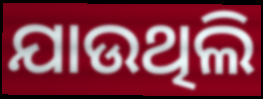
ଯାଉଥିଲି